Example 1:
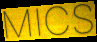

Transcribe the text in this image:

MICS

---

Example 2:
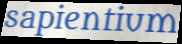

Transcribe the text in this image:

sapientium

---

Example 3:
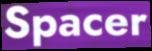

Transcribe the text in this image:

Spacer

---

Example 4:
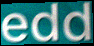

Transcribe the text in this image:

edd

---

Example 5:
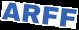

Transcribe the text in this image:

ARFF